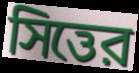
সিত্তের